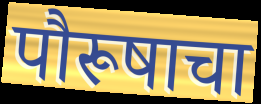
पौरूषाचा